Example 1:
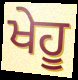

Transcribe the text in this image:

ਖੇਹੂ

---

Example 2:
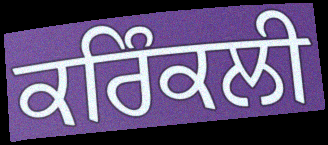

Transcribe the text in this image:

ਕਰਿੰਕਲੀ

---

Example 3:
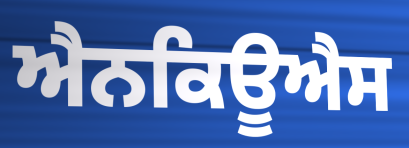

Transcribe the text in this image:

ਐਨਕਿਊਐਸ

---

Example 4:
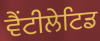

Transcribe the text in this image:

ਵੈਂਟੀਲੇਟਿਡ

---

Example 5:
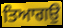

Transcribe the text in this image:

ਤਿਆਗਉ